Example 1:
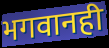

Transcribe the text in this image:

भगवानही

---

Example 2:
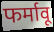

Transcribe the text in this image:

फर्मावू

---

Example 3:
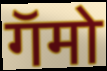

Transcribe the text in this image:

गॅमो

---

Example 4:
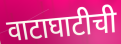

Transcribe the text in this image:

वाटाघाटीची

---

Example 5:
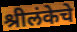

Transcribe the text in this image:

श्रीलंकेचे